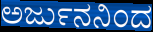
ಅರ್ಜುನನಿಂದ